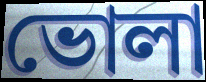
ভোলা